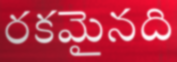
రకమైనది